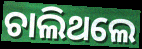
ଚାଲିଥଲେ